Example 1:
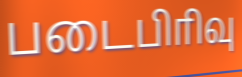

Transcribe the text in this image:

படைபிரிவு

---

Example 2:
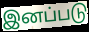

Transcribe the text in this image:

இனப்படு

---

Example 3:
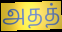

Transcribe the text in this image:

அதத்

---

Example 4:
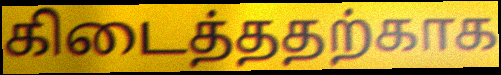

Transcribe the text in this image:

கிடைத்ததற்காக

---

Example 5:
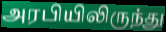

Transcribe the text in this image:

அரபியிலிருந்து